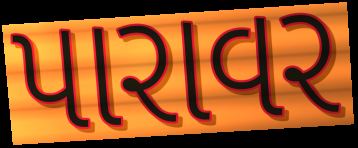
પારાવર